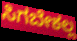
ಸಿಗಬೇಕಲ್ಲ